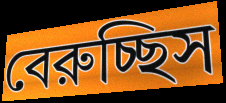
বেরুচ্ছিস